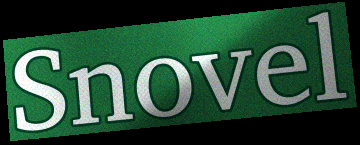
Snovel